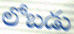
లోబడు